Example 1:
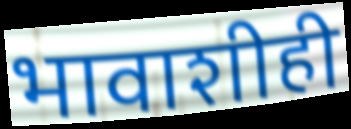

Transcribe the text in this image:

भावाशीही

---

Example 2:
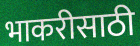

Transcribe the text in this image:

भाकरीसाठी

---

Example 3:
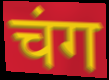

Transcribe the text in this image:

चंग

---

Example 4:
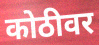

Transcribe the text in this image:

कोठीवर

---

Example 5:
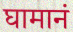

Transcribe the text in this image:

घामानं